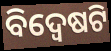
ବିଦ୍ୱେଷଟି